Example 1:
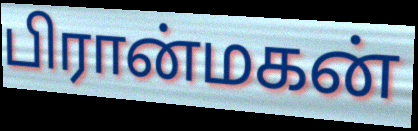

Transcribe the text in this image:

பிரான்மகன்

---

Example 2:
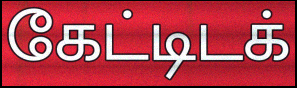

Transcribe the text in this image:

கேட்டிடக்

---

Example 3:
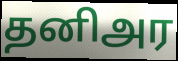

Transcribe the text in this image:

தனிஅர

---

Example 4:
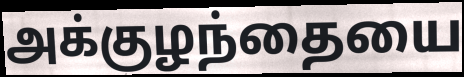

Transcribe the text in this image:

அக்குழந்தையை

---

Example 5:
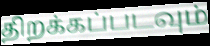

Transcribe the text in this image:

திறக்கப்படவும்